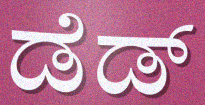
ಡೆಡ್